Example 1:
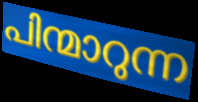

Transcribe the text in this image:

പിന്മാറുന്ന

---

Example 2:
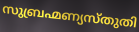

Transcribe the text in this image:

സുബ്രഹ്മണ്യസ്തുതി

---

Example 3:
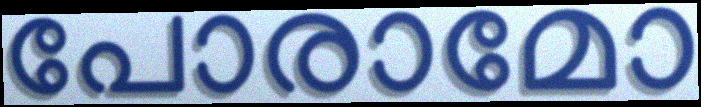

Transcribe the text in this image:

പോരാമോ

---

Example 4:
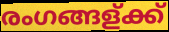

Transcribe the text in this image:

രംഗങ്ങള്ക്ക്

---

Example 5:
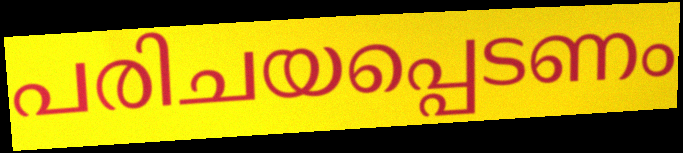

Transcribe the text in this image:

പരിചയപ്പെടണം